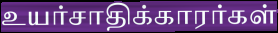
உயர்சாதிக்காரர்கள்